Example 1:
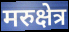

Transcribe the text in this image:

मरुक्षेत्र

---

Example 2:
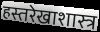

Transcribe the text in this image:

हस्तरेखाशास्त्र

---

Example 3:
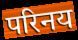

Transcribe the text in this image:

परिनय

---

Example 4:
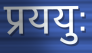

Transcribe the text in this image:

प्रययुः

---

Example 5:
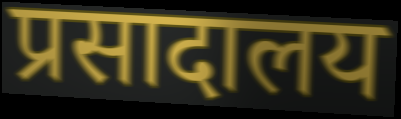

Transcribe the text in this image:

प्रसादालय